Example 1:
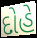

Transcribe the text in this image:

દોહે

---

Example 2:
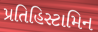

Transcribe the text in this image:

પ્રતિહિસ્ટામિન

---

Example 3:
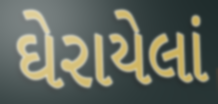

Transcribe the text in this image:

ઘેરાયેલાં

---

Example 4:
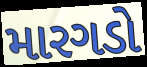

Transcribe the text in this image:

મારગડો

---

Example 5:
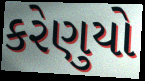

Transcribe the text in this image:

કરેણુયો